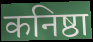
कनिष्ठा